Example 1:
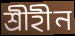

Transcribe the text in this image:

শ্রীহীন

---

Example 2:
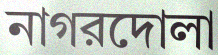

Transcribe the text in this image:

নাগরদোলা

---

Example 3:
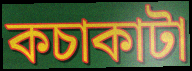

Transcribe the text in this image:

কচাকাটা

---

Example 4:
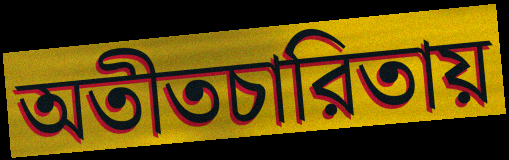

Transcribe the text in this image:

অতীতচারিতায়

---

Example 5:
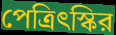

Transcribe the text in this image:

পেত্রিৎস্কির